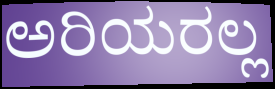
ಅರಿಯರಲ್ಲ